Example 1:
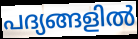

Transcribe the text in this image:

പദ്യങ്ങളിൽ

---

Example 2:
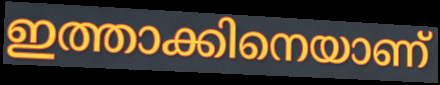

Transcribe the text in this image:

ഇത്താക്കിനെയാണ്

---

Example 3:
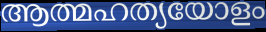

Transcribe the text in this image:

ആത്മഹത്യയോളം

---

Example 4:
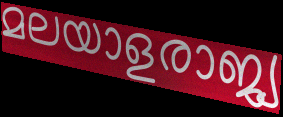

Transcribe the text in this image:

മലയാളരാജ്യ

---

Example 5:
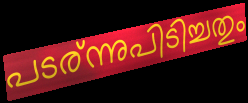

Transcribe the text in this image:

പടര്ന്നുപിടിച്ചതും